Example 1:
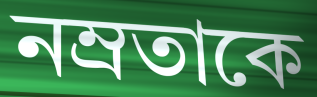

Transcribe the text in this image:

নম্রতাকে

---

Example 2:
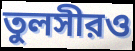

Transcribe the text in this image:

তুলসীরও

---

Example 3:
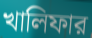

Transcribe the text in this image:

খালিফার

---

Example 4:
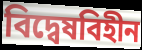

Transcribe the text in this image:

বিদ্বেষবিহীন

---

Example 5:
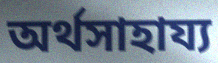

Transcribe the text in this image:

অর্থসাহায্য